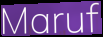
Maruf